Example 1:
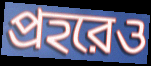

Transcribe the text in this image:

প্রহরেও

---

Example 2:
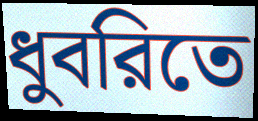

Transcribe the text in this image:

ধুবরিতে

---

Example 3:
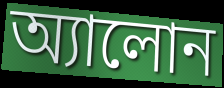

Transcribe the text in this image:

অ্যালোন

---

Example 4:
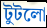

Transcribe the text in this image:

টুটলো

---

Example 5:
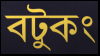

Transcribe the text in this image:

বটুকং